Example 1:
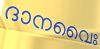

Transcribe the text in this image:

ദാനവൈഃ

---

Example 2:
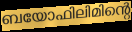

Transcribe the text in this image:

ബയോഫിലിമിന്റെ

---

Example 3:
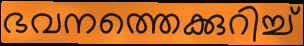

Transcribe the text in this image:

ഭവനത്തെക്കുറിച്ച്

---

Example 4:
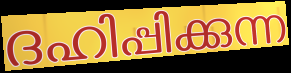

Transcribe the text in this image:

ദഹിപ്പിക്കുന്ന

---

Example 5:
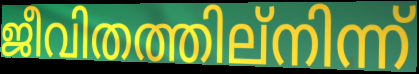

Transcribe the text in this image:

ജീവിതത്തില്നിന്ന്